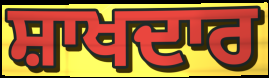
ਸ਼ਾਖਦਾਰ